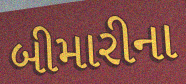
બીમારીના